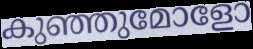
കുഞ്ഞുമോളോ